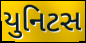
યુનિટસ